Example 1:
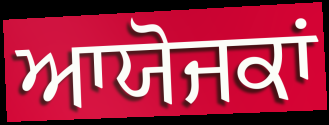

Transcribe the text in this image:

ਆਯੋਜਕਾਂ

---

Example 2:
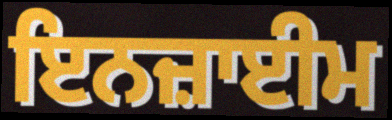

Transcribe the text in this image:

ਇਨਜ਼ਾਈਮ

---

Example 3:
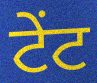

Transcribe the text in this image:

ਟੇਂਟ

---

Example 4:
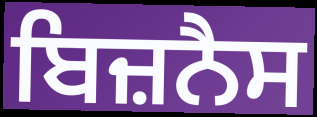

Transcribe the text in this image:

ਬਿਜ਼ਨੈਸ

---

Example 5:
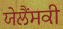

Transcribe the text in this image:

ਯੇਲੈਂਸਕੀ